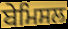
ਬੇਮਿਸਲ